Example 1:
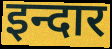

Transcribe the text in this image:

इन्दार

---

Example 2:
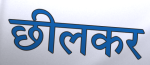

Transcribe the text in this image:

छीलकर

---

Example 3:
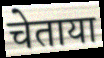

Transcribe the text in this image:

चेताया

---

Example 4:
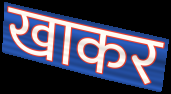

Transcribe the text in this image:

खाकर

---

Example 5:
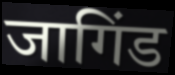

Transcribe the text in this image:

जागिंड